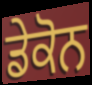
ਡੇਕੋਨ